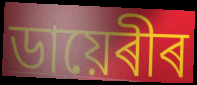
ডায়েৰীৰ